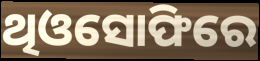
ଥିଓସୋଫିରେ